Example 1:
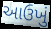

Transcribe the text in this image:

આઉખું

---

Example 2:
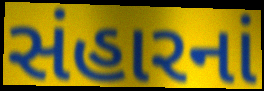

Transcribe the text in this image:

સંહારનાં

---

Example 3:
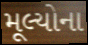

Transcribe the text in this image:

મૂલ્‍યોના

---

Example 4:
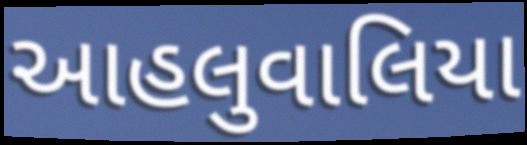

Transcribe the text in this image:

આહલુવાલિયા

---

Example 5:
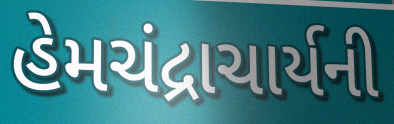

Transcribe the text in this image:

હેમચંદ્રાચાર્યની